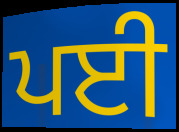
ਪਈ